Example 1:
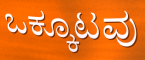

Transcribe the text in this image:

ಒಕ್ಕೂಟವು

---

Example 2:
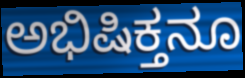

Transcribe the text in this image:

ಅಭಿಷಿಕ್ತನೂ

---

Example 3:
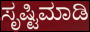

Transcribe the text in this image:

ಸೃಷ್ಟಿಮಾಡಿ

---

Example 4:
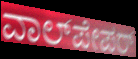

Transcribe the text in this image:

ವಾಲ್‌ಪೇಪರ್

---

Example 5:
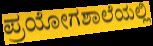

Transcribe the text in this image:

ಪ್ರಯೋಗಶಾಲೆಯಲ್ಲಿ